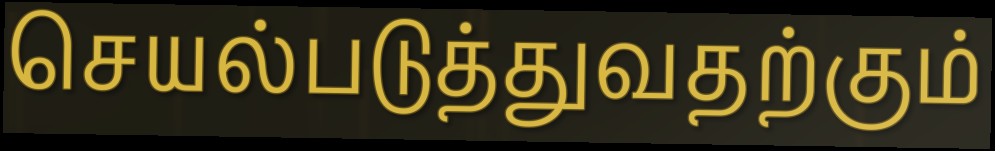
செயல்படுத்துவதற்கும்